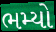
ભમ્યો